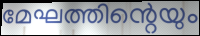
മേഘത്തിന്റെയും